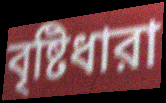
বৃষ্টিধারা